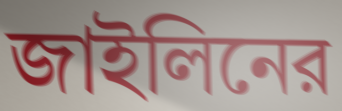
জাইলিনের